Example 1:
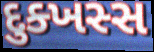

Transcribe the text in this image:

દુક્ખસ્સ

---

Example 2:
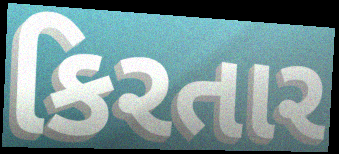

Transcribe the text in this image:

કિરતાર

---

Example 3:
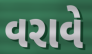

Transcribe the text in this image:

વરાવે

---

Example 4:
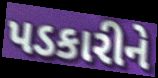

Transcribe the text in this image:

પડકારીને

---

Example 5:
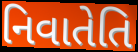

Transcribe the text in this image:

નિવાતેતિ